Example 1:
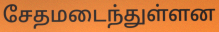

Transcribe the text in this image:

சேதமடைந்துள்ளன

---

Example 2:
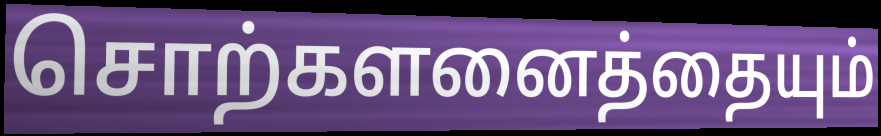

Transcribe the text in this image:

சொற்களனைத்தையும்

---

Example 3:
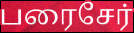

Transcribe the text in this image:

பரைசேர்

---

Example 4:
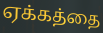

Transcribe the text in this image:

ஏக்கத்தை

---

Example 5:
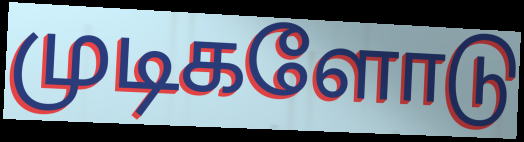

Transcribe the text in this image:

முடிகளோடு